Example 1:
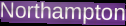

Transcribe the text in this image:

Northampton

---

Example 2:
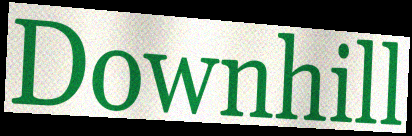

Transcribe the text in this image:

Downhill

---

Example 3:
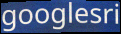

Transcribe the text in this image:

googlesri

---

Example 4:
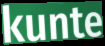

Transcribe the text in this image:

kunte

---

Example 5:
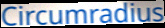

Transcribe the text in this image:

Circumradius